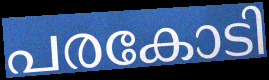
പരകോടി